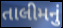
તાલીમનું